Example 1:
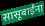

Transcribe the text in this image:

सासूबाईंना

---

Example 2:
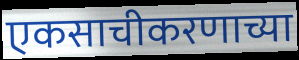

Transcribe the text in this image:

एकसाचीकरणाच्या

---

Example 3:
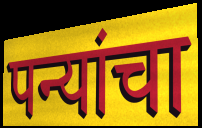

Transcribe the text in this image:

पन्यांचा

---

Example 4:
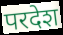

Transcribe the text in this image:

परदेश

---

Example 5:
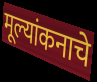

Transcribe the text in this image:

मूल्यांकनाचे